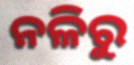
ନଳିରୁ